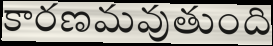
కారణమవుతుంది